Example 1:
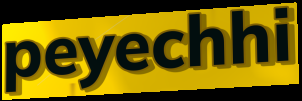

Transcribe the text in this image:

peyechhi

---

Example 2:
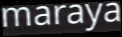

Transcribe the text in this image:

maraya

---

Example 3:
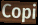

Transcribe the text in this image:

Copi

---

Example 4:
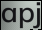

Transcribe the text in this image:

apj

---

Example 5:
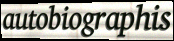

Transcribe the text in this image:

autobiographis